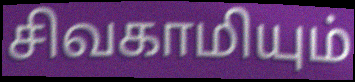
சிவகாமியும்